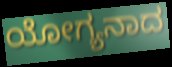
ಯೋಗ್ಯನಾದ